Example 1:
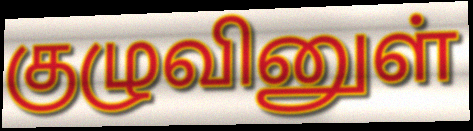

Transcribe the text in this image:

குழுவினுள்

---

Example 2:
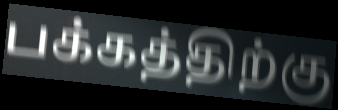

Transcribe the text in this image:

பக்கத்திற்கு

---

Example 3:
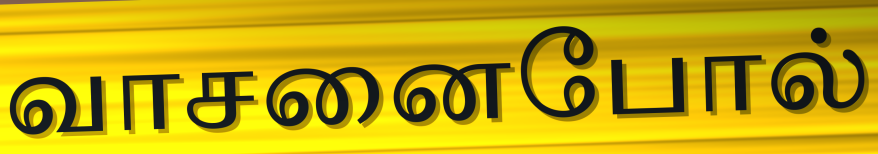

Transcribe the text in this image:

வாசனைபோல்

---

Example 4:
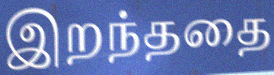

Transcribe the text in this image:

இறந்ததை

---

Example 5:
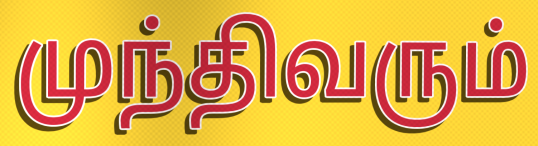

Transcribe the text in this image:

முந்திவரும்